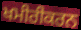
ਖਮੀਰੀਕਰਨ